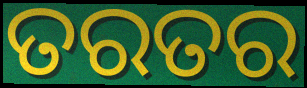
ତରତର